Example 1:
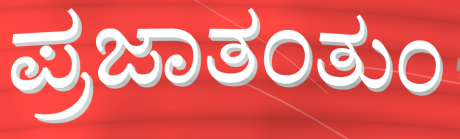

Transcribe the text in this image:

ಪ್ರಜಾತಂತುಂ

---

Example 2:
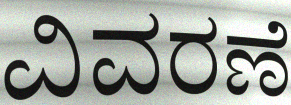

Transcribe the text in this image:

ವಿವರಣೆ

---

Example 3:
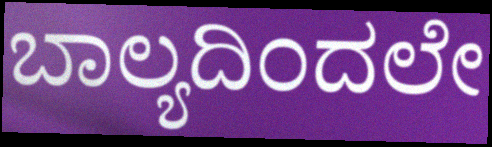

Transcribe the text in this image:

ಬಾಲ್ಯದಿಂದಲೇ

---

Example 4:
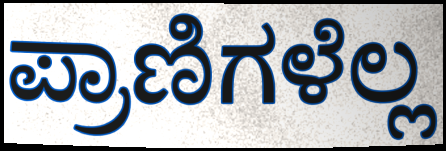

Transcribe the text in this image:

ಪ್ರಾಣಿಗಳೆಲ್ಲ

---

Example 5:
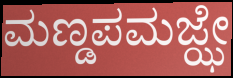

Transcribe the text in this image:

ಮಣ್ಡಪಮಜ್ಝೇ